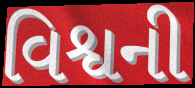
વિશ્વની